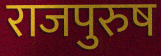
राजपुरुष